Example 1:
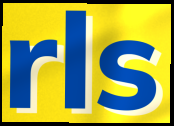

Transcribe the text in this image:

rls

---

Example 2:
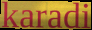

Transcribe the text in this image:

karadi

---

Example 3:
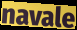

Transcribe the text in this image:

navale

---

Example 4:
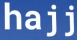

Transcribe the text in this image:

hajj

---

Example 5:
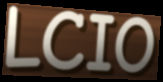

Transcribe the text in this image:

LCIO